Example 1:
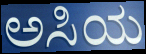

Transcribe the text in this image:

ಅಸಿಯ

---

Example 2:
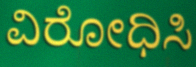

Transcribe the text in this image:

ವಿರೋಧಿಸಿ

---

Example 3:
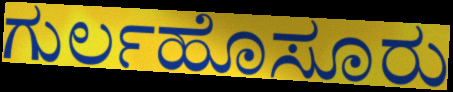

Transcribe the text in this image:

ಗುರ್ಲಹೊಸೂರು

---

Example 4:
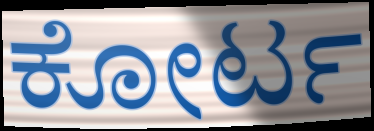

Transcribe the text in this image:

ಕೋರ್ಟ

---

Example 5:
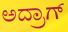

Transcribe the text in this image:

ಅದ್ರಾಗ್